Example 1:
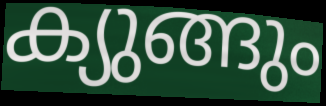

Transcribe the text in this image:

ക്യുങ്ങും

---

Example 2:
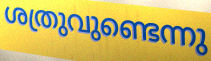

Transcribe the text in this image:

ശത്രുവുണ്ടെന്നു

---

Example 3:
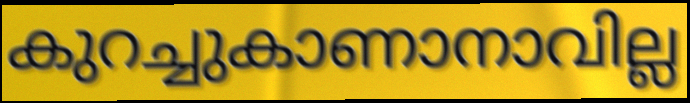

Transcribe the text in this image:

കുറച്ചുകാണാനാവില്ല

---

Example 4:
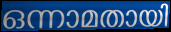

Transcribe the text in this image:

ഒന്നാമതായി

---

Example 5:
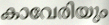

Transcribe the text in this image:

കാവേരിയും